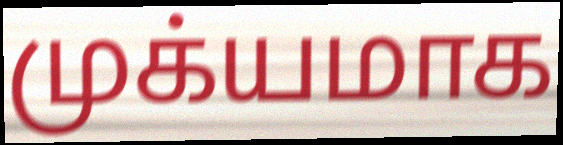
முக்யமாக